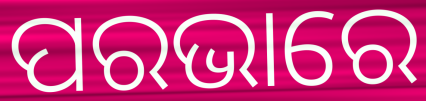
ପରଭାରେ